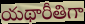
యథారీతిగా